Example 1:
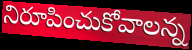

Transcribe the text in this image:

నిరూపించుకోవాలన్న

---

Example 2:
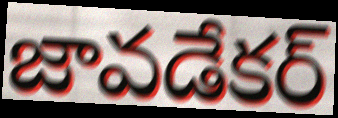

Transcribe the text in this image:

జావడేకర్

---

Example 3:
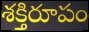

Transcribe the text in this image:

శక్తిరూపం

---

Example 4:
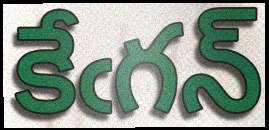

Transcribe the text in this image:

కేఁగన్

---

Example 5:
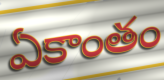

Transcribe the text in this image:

ఏకాంతం